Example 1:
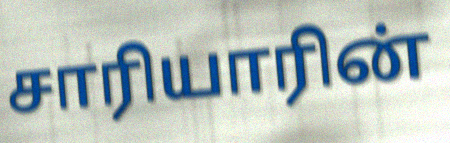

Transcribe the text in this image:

சாரியாரின்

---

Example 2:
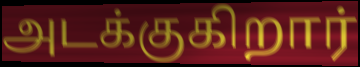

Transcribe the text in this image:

அடக்குகிறார்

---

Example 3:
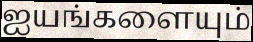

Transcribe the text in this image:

ஐயங்களையும்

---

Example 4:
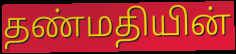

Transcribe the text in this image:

தண்மதியின்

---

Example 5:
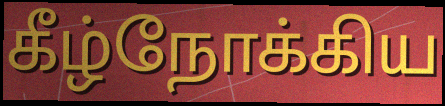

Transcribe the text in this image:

கீழ்நோக்கிய